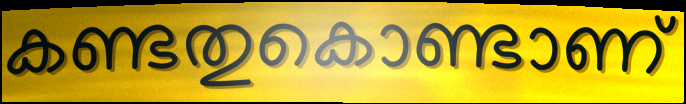
കണ്ടതുകൊണ്ടാണ്